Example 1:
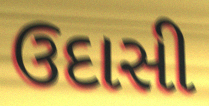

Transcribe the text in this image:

ઉદાસી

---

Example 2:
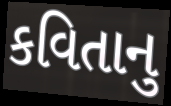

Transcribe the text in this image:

કવિતાનુ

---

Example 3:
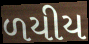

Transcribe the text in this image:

ળયીય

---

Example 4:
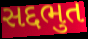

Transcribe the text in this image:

સદ્દભુત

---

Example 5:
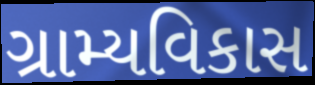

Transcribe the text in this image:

ગ્રામ્યવિકાસ